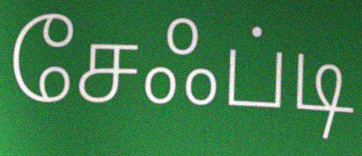
சேஃப்டி